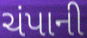
ચંપાની